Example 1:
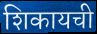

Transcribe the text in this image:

शिकायची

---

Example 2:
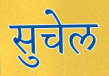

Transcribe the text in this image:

सुचेल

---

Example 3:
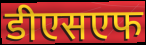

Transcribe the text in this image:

डीएसएफ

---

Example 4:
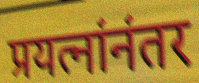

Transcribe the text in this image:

प्रयत्नांनंतर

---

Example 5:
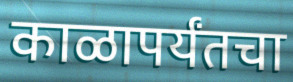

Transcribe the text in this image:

काळापर्यंतचा